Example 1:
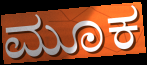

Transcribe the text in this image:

ಮೂಕ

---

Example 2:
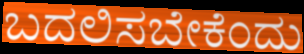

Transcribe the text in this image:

ಬದಲಿಸಬೇಕೆಂದು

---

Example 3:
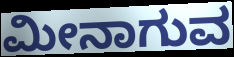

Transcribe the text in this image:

ಮೀನಾಗುವ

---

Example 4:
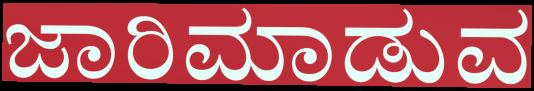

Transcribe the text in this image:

ಜಾರಿಮಾಡುವ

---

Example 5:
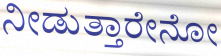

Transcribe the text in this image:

ನೀಡುತ್ತಾರೇನೋ